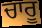
ਚਾਰੂ